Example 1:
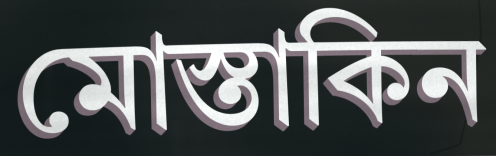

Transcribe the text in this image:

মোস্তাকিন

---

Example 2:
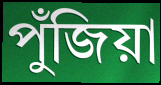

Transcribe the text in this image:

পুঁজিয়া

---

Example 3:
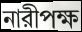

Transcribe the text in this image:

নারীপক্ষ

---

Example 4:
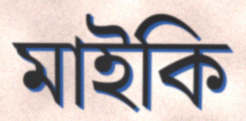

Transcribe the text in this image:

মাইকি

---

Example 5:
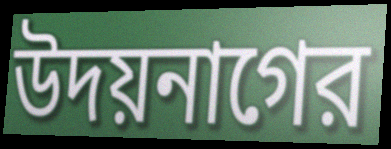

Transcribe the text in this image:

উদয়নাগের